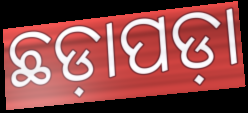
ଛଡ଼ାପଡ଼ା